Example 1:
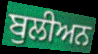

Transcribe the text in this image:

ਬੁਲੀਅਨ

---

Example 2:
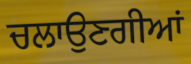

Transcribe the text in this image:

ਚਲਾਉਣਗੀਆਂ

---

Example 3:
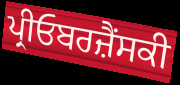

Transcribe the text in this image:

ਪ੍ਰੀਓਬਰਜ਼ੈਂਸਕੀ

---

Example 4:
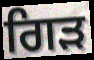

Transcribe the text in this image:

ਗਿੜ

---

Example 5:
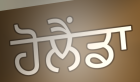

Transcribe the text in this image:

ਹੋਲੈਂਡਾ